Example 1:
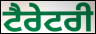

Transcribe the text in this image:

ਟੈਰੇਟਰੀ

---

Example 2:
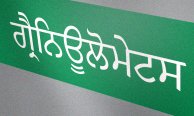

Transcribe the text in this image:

ਗ੍ਰੈਨਿਊਲੋਮੇਟਸ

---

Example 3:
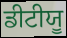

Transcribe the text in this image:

ਡੀਟੀਯੂ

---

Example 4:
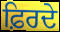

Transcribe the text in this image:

ਫ਼ਿਰਦੇ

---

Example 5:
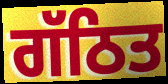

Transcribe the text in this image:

ਗੱਠਿਤ